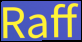
Raff